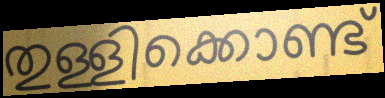
തുള്ളിക്കൊണ്ട്